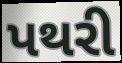
પથરી